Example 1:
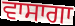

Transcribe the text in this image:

ਵਾਸਾਗਾ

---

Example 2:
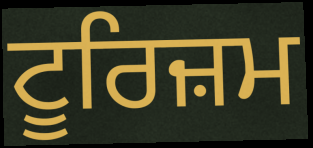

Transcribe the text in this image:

ਟੂਰਿਜ਼ਮ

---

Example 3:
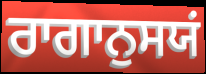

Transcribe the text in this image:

ਰਾਗਾਨੁਸਯਂ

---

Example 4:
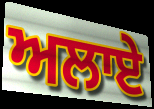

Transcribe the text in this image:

ਅਲਾਏ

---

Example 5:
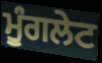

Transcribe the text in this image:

ਮੂੰਗਲੇਟ